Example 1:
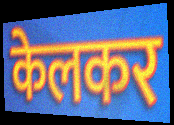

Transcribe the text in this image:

केलकर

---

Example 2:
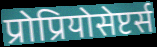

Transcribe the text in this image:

प्रोप्रियोसेप्टर्स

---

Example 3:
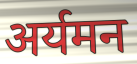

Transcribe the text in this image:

अर्यमन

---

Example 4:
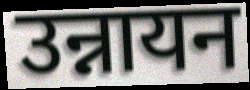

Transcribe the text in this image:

उन्नायन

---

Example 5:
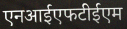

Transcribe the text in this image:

एनआईएफटीईएम